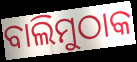
ବାଲିମୁଠାକ